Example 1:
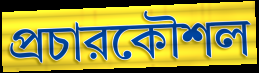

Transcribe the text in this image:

প্রচারকৌশল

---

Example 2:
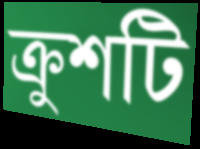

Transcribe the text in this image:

ক্রুশটি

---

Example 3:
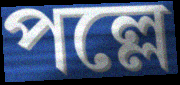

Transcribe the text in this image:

পল্লে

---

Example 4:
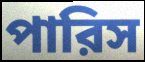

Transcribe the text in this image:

পারিস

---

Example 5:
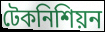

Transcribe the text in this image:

টেকনিশিয়ন